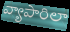
వ్యాపారిలా